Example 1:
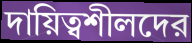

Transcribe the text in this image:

দায়িত্বশীলদের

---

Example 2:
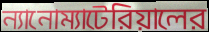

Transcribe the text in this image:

ন্যানোম্যাটেরিয়ালের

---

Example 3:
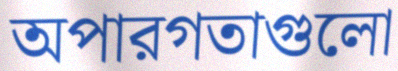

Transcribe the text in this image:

অপারগতাগুলো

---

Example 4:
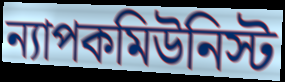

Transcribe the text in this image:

ন্যাপকমিউনিস্ট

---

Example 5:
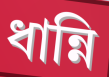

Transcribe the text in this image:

ধান্নি